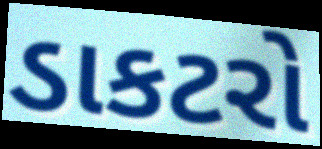
ડાકટરો